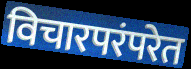
विचारपरंपरेत